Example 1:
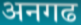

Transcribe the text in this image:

अनगढ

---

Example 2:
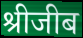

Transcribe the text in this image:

श्रीजीब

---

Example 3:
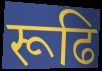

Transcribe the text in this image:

रूढि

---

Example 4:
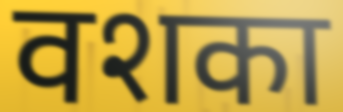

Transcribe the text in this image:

वशका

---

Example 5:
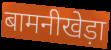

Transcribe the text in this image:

बामनीखेड़ा